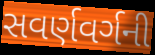
સવર્ણવર્ગની